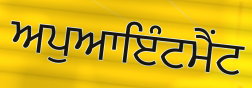
ਅਪੁਆਇੰਟਮੈਂਟ